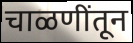
चाळणींतून